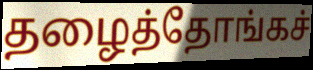
தழைத்தோங்கச்